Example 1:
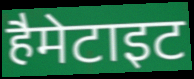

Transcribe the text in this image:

हैमेटाइट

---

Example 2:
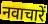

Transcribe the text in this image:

नवाचारें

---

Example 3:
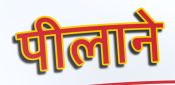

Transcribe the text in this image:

पीलाने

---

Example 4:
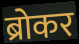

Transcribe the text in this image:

ब्रोकर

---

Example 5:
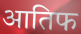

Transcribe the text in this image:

आतिफ